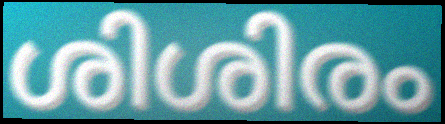
ശിശിരം